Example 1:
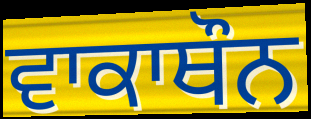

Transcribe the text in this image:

ਵਾਕਾਥੌਨ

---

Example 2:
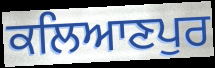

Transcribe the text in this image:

ਕਲਿਆਣਪੁਰ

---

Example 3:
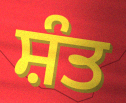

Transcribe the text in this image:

ਸ਼ੰਤ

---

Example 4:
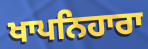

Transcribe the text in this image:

ਖਾਪਨਿਹਾਰਾ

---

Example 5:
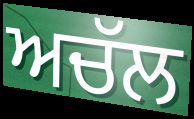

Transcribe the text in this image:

ਅਚੱਲ